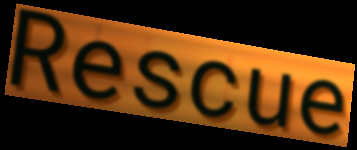
Rescue